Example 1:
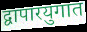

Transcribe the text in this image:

द्वापारयुगात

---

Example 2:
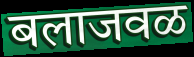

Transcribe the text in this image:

बलाजवळ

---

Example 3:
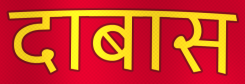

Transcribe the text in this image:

दाबास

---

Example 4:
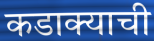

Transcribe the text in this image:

कडाक्याची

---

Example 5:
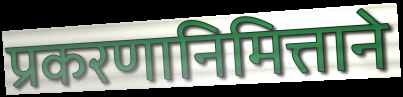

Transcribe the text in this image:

प्रकरणानिमित्ताने